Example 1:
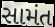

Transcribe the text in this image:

સામંત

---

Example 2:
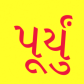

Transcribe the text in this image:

પૂર્યું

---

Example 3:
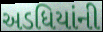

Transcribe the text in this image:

અડધિયાંની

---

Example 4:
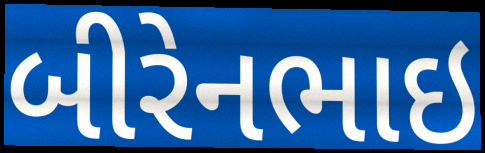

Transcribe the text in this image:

બીરેનભાઇ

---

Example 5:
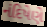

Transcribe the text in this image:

નંદિષેણે